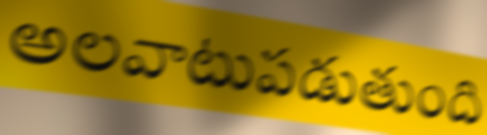
అలవాటుపడుతుంది